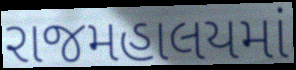
રાજમહાલયમાં